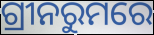
ଗ୍ରୀନରୁମରେ